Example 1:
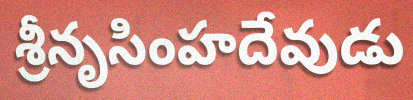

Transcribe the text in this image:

శ్రీనృసింహదేవుడు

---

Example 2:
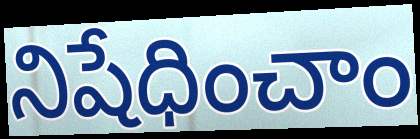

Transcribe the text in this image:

నిషేధించాం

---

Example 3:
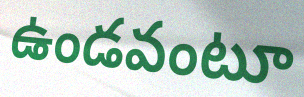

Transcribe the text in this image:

ఉండవంటూ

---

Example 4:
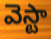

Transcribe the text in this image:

వెస్టా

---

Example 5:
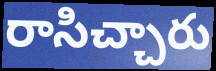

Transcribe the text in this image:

రాసిచ్చారు